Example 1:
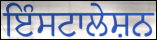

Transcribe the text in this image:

ਇੰਸਟਾਲੇਸ਼ਨ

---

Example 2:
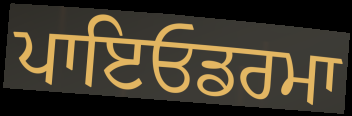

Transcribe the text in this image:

ਪਾਇਓਡਰਮਾ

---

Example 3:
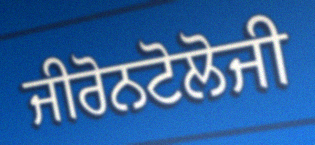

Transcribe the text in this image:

ਜੀਰੋਨਟੋਲੋਜੀ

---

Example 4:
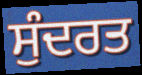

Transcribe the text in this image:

ਸੁੰਦਰਤ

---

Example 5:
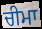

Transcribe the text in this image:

ਚੀਮਾ